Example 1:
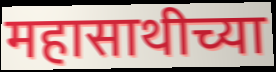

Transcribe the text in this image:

महासाथीच्या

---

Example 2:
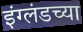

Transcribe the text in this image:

इंग्लंडच्या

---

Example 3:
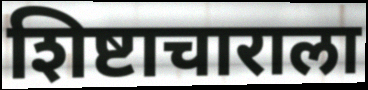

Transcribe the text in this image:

शिष्टाचाराला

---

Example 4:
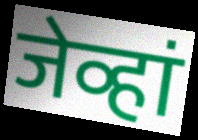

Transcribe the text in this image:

जेव्हां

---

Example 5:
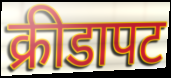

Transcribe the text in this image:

क्रीडापट